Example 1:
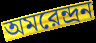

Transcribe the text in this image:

অমরেন্দ্রন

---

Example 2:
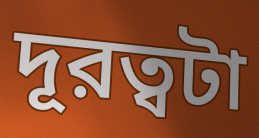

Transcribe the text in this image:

দূরত্বটা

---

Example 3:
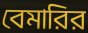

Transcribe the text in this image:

বেমারির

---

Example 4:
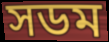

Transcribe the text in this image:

সডম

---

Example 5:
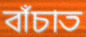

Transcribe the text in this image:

বাঁচাত